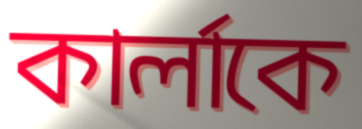
কার্লাকে